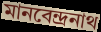
মানবেন্দ্রনাথ